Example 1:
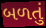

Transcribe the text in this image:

બળતું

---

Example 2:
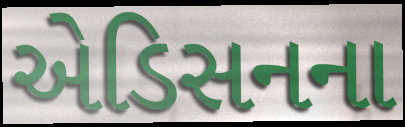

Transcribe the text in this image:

એડિસનના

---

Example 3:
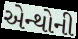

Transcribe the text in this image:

એન્થોની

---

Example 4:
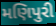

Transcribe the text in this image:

મણિપુરી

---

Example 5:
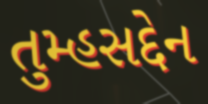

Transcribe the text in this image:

તુમ્હસદ્દેન